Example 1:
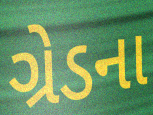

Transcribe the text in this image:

ગ્રેડના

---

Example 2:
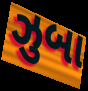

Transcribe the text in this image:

ઝુબા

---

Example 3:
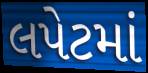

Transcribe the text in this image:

લપેટમાં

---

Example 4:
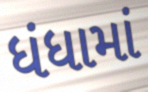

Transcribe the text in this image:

ધંધામાં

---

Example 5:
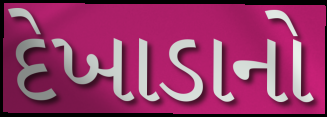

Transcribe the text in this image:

દેખાડાનો